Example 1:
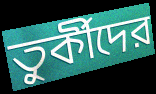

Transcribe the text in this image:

তুর্কীদের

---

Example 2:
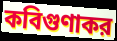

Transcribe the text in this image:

কবিগুণাকর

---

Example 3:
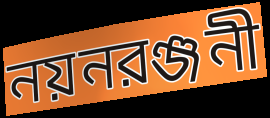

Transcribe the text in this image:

নয়নরঞ্জনী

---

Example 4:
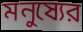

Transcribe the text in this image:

মনুষ্যের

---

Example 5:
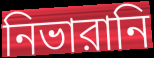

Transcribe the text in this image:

নিভারানি